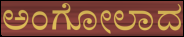
ಅಂಗೋಲಾದ